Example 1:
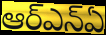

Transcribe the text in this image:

ఆర్ఎన్ఏ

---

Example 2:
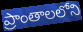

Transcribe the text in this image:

ప్రాంతాలలోని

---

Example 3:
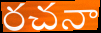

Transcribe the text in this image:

రచనా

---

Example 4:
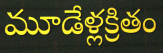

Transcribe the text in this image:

మూడేళ్లక్రితం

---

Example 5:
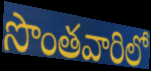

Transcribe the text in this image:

సొంతవారిలో